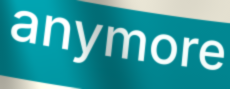
anymore